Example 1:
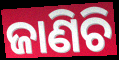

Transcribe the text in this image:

ଜାଣିଚି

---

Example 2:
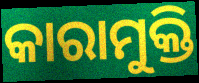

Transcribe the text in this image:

କାରାମୁକ୍ତି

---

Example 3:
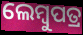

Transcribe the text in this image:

ଲେମ୍ବୁପତ୍ର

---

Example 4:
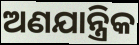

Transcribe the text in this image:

ଅଣଯାନ୍ତ୍ରିକ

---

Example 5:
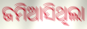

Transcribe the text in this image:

ଜମିଆସିଥିଲା